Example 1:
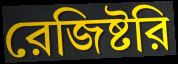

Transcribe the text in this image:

রেজিষ্টরি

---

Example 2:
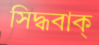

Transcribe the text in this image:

সিদ্ধবাক্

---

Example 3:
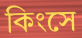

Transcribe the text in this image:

কিংসে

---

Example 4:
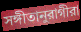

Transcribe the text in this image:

সঙ্গীতানুরাগীরা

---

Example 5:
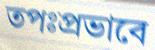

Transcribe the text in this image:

তপঃপ্রভাবে